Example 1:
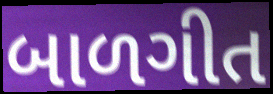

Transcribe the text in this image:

બાળગીત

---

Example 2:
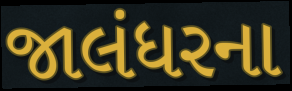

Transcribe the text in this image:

જાલંધરના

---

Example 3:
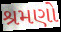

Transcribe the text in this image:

શ્રમણો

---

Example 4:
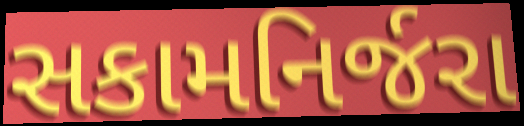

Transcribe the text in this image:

સકામનિર્જરા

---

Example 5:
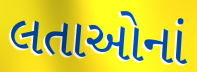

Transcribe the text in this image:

લતાઓનાં